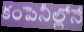
కంపెనీల్లోనే